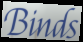
Binds